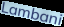
Lambani